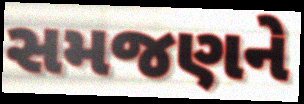
સમજણને